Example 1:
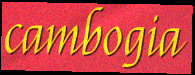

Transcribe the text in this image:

cambogia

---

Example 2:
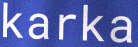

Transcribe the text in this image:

karka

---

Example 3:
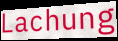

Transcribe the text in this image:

Lachung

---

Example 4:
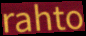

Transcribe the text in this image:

rahto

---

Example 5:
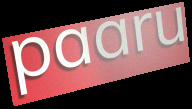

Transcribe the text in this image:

paaru